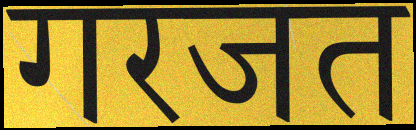
गरजत